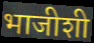
भाजीशी